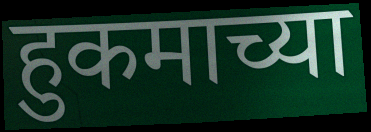
हुकमाच्या